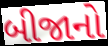
બીજાનો